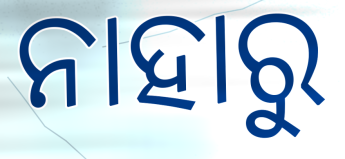
ନାହାରୁ